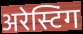
अरेस्टिंग